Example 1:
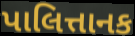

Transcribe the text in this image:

પાલિત્તાનક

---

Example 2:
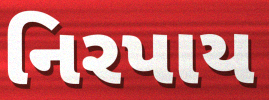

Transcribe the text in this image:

નિરપાય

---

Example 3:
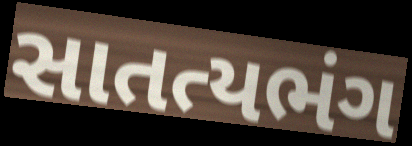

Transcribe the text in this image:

સાતત્યભંગ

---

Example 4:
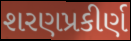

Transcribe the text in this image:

શરણપ્રકીર્ણ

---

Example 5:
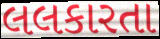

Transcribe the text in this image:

લલકારતા